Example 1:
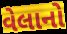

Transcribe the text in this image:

વેલાનો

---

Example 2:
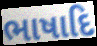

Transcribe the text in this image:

ભાષાદિ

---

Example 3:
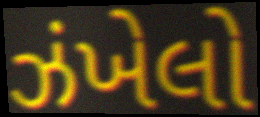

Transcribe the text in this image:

ઝંખેલો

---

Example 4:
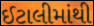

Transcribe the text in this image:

ઈટાલીમાંથી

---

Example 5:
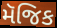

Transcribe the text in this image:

મૅજિક